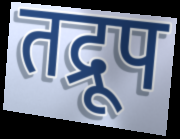
तद्रूप